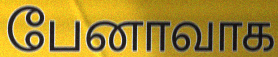
பேனாவாக